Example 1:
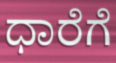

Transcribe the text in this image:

ಧಾರೆಗೆ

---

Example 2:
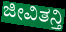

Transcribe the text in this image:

ಜೀವಿತನ್ತಿ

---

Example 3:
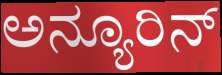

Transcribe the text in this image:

ಅನ್ಯೂರಿನ್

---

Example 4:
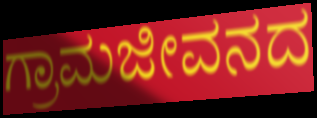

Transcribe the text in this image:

ಗ್ರಾಮಜೀವನದ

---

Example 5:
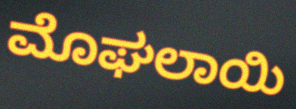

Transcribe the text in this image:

ಮೊಘಲಾಯಿ